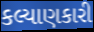
કલ્યાણકારી